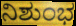
ನಿಶುಂಭ